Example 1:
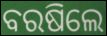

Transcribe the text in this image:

ବରଷିଲେ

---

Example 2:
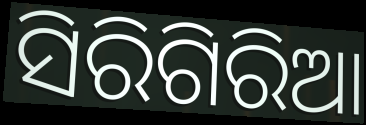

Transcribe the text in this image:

ସିରିଗିରିଆ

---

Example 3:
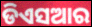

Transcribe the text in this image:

ଡିଏସଆର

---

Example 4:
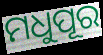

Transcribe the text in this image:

ମଧୁପୂର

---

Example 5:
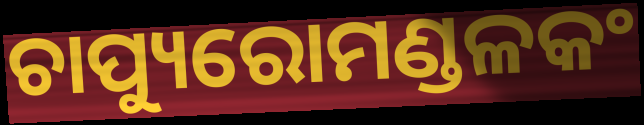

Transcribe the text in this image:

ଚାପ୍ୟୁରୋମଣ୍ଡଳକଂ